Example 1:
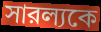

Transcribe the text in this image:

সারল্যকে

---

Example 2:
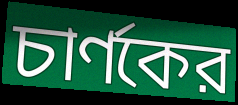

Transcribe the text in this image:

চার্ণকের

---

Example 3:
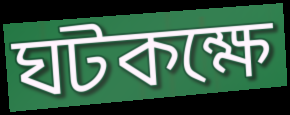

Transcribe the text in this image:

ঘটকক্ষে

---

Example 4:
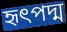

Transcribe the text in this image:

হৃৎপদ্ম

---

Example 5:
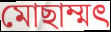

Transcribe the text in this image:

মোছাম্মৎ